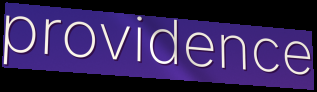
providence